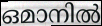
ഒമാനിൽ